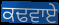
ਕਢਵਾਏ